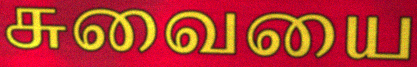
சுவையை